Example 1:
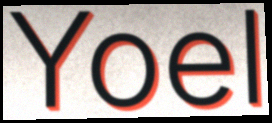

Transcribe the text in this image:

Yoel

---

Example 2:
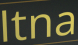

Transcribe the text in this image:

Itna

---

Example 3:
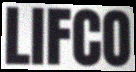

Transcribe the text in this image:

LIFCO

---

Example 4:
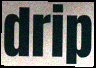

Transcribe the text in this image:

drip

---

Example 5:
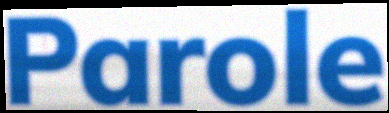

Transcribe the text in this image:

Parole